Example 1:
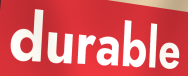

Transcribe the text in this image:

durable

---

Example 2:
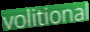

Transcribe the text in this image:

volitional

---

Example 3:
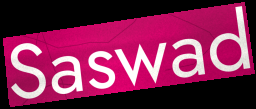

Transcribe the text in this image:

Saswad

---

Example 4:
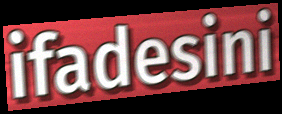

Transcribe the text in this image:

ifadesini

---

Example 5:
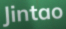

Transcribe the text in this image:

Jintao